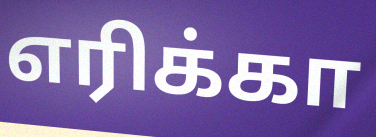
எரிக்கா